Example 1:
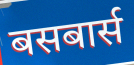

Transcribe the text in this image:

बसबार्स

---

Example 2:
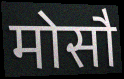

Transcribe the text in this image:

मोसौ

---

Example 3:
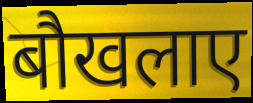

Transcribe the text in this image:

बौखलाए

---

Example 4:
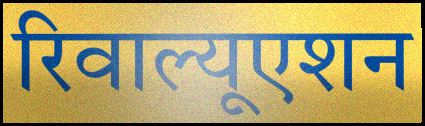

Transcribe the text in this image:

रिवाल्यूएशन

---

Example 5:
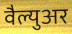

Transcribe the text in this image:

वैल्युअर